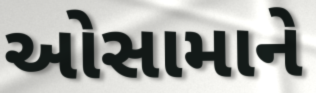
ઓસામાને